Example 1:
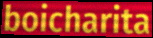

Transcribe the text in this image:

boicharita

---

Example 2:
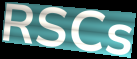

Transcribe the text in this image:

RSCs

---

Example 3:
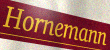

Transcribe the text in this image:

Hornemann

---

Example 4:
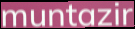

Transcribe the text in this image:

muntazir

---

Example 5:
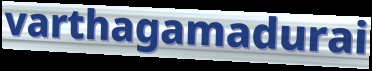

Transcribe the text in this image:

varthagamadurai